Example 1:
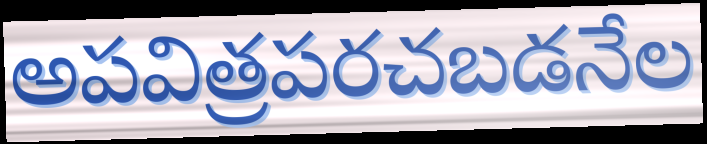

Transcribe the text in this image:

అపవిత్రపరచబడనేల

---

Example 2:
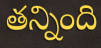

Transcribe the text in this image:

తన్నింది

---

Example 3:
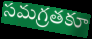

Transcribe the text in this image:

సమగ్రతకూ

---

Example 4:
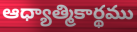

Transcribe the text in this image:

ఆధ్యాత్మికార్థము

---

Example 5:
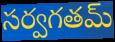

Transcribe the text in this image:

సర్వగతమ్